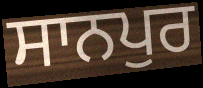
ਸਾਨਪੁਰ